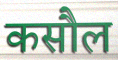
कसौल